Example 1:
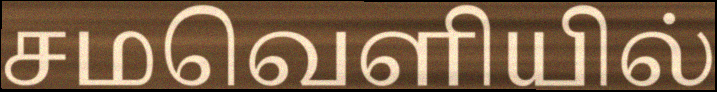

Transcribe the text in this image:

சமவெளியில்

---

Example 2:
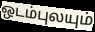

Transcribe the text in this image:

ஒடம்புலயும்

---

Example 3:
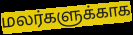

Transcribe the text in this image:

மலர்களுக்காக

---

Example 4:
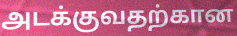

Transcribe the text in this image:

அடக்குவதற்கான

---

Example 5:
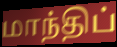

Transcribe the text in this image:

மாந்திப்